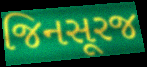
જિનસૂરજ